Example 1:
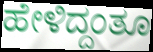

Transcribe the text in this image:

ಹೇಳಿದ್ದಂತೂ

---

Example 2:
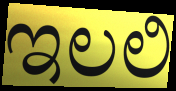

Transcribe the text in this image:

ಇಲಲಿ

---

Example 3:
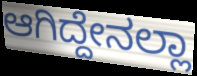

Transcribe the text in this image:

ಆಗಿದ್ದೇನಲ್ಲಾ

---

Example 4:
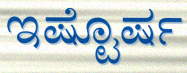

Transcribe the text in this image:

ಇಷ್ಟೊರ್ಷ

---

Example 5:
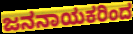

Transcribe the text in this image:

ಜನನಾಯಕರಿಂದ